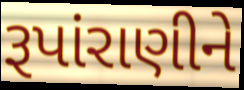
રૂપાંરાણીને